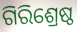
ଗିରିଶ୍ରେଷ୍ଠ